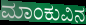
ಮಾಂಕುವಿನ